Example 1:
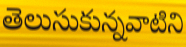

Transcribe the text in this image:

తెలుసుకున్నవాటిని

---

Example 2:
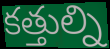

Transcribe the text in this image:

కత్తుల్ని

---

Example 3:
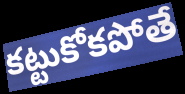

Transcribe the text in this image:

కట్టుకోకపోతే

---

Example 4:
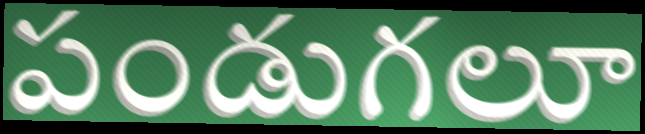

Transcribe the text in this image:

పండుగలూ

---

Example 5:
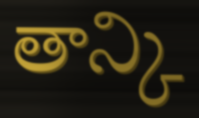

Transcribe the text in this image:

తాన్కి